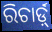
ରିଚାର୍ଡ଼୍